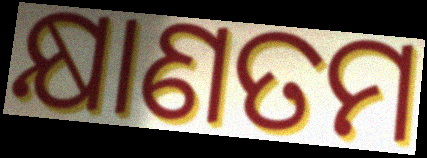
କ୍ଷାଣତମ